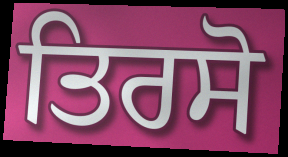
ਤਿਰਸੋ